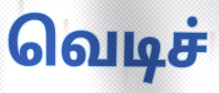
வெடிச்